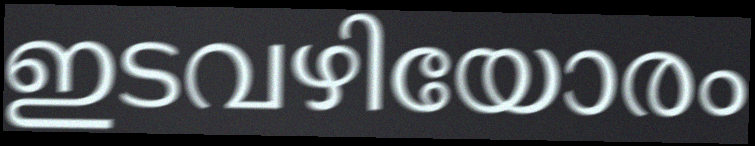
ഇടവഴിയോരം